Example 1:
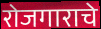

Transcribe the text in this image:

रोजगाराचे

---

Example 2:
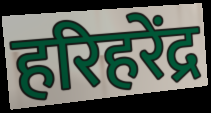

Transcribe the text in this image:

हरिहरेंद्र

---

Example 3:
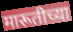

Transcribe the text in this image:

मारूतीच्या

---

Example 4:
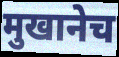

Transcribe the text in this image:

मुखानेच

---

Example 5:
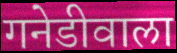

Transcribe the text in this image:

गनेडीवाला